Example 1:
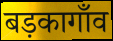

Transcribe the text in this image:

बड़कागाँव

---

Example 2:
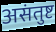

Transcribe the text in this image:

असंतुष्ट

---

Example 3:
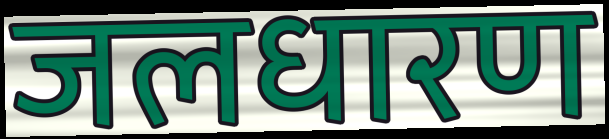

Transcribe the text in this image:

जलधारण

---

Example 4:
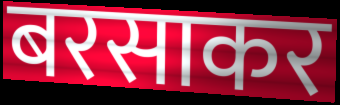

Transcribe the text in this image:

बरसाकर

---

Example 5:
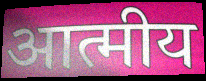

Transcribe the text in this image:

आत्मीय